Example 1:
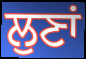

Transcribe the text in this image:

ਲੁਣਾਂ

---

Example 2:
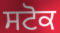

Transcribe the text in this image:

ਸਟੋਕ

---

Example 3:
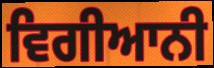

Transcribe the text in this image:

ਵਿਗੀਆਨੀ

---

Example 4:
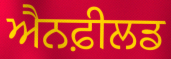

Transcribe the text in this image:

ਐਨਫ਼ੀਲਡ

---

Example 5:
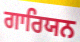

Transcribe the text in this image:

ਗਾਰਿਯਨ